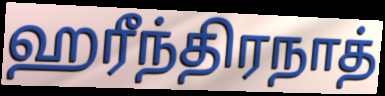
ஹரீந்திரநாத்